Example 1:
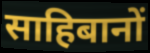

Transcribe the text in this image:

साहिबानों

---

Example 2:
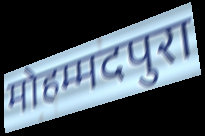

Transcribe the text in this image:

मोहम्मदपुरा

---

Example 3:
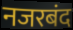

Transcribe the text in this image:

नजरबंद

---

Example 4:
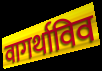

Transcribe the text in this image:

वागर्थाविव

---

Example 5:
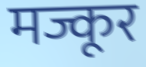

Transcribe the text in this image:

मज्कूर